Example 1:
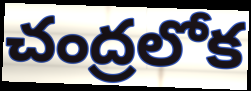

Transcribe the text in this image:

చంద్రలోక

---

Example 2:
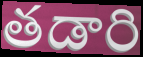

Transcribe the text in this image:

తడారి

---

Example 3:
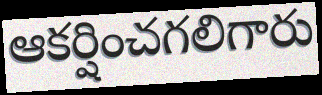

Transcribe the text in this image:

ఆకర్షించగలిగారు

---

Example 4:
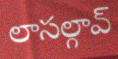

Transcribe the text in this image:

లాసల్గావ్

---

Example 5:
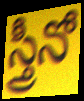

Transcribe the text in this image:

స్త్రీనో